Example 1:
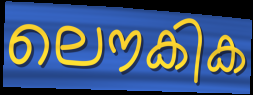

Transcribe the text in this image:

ലൌകിക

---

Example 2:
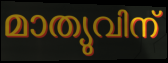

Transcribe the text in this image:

മാത്യുവിന്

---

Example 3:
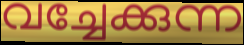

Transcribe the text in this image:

വച്ചേക്കുന്ന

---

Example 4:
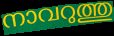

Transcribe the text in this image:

നാവറുത്തു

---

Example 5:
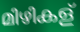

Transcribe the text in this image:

മിഴികള്